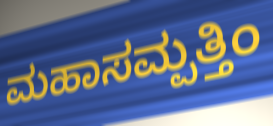
ಮಹಾಸಮ್ಪತ್ತಿಂ